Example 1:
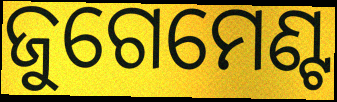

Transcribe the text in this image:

ଜୁଗେମେଣ୍ଟ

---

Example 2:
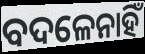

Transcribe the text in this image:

ବଦଳେନାହିଁ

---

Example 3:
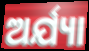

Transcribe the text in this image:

ଅର୍ଯ୍ୟା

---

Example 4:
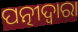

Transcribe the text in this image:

ପତ୍ନୀଦ୍ୱାରା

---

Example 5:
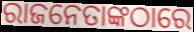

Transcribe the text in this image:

ରାଜନେତାଙ୍କଠାରେ